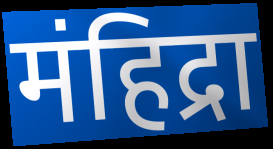
मंहिद्रा